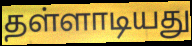
தள்ளாடியது